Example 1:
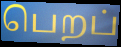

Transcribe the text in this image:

பெறப்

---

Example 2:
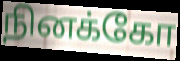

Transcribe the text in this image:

நினக்கோ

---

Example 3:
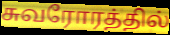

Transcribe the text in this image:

சுவரோரத்தில்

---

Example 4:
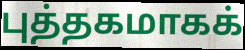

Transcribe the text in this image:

புத்தகமாகக்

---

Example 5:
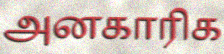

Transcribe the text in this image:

அனகாரிக